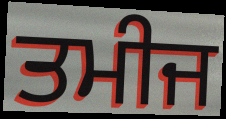
ਤਮੀਜ